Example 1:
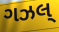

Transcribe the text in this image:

ગઝલ્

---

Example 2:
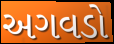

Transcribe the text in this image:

અગવડો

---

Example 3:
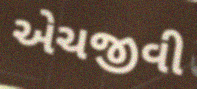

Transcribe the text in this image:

એચજીવી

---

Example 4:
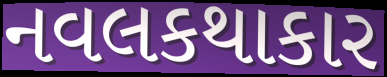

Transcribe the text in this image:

નવલકથાકાર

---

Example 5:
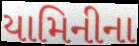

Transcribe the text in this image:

યામિનીના